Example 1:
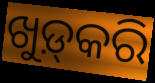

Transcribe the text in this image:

ଖୁଡ଼୍‍କରି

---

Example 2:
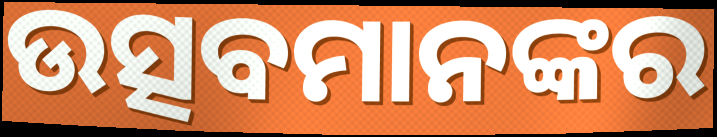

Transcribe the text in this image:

ଉତ୍ସବମାନଙ୍କର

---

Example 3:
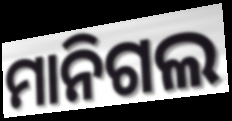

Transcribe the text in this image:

ମାନିଗଲ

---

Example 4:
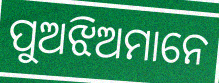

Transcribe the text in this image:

ପୁଅଝିଅମାନେ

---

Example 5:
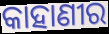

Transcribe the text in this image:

କାହାଣୀର